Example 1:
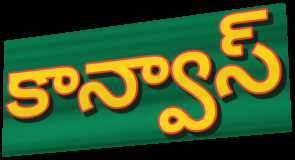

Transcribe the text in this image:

కాన్వాస్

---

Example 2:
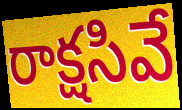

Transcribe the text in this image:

రాక్షసివే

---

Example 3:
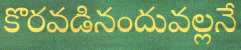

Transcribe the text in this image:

కొరవడినందువల్లనే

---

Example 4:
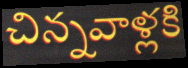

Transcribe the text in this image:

చిన్నవాళ్లకి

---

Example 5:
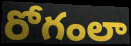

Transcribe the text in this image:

రోగంలా